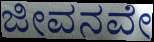
ಜೀವನವೇ